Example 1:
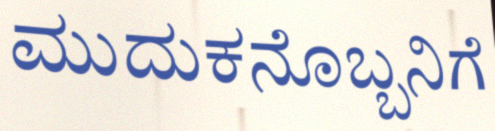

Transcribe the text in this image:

ಮುದುಕನೊಬ್ಬನಿಗೆ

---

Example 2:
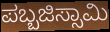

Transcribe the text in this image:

ಪಬ್ಬಜಿಸ್ಸಾಮಿ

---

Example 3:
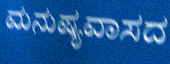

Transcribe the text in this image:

ಮನುಷ್ಯವಾಸದ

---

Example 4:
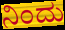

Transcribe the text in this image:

ನಿಂದು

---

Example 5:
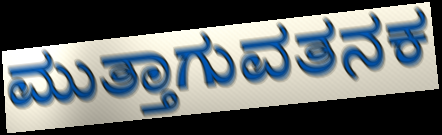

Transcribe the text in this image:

ಮುತ್ತಾಗುವತನಕ